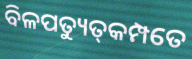
ବିଳପତ୍ୟୁତ୍‌କମ୍ପତେ